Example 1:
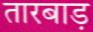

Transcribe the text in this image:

तारबाड़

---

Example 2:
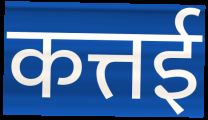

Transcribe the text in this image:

कत्तई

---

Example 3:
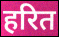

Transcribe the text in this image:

हरित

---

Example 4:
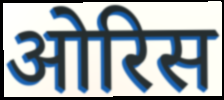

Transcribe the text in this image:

ओरिस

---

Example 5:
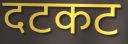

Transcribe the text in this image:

दटकट